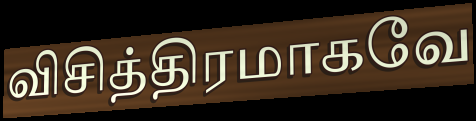
விசித்திரமாகவே